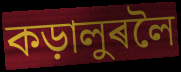
কড়ালুৰলৈ